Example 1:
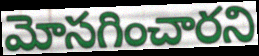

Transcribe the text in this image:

మోసగించారని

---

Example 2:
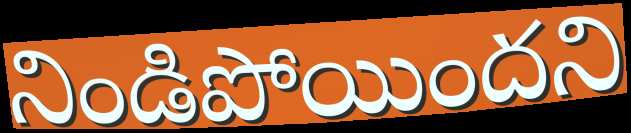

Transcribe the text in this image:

నిండిపోయిందని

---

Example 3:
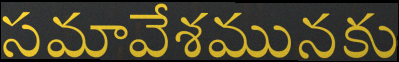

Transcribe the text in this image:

సమావేశమునకు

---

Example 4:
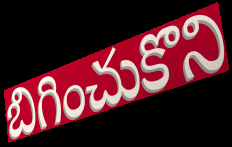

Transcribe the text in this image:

బిగించుకొని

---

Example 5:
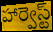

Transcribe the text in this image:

హార్వెస్ట్